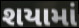
શયામાં